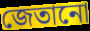
জেতানো